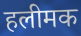
हलीमक